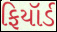
ફિયૉર્ડ